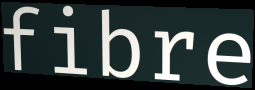
fibre